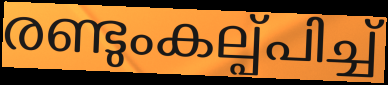
രണ്ടുംകല്പ്പിച്ച്